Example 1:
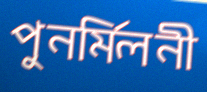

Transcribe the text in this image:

পুনর্মিলনী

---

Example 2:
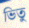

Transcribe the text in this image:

ভিতু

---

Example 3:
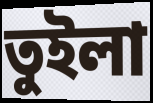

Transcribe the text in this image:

তুইলা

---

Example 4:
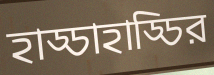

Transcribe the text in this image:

হাড্ডাহাড্ডির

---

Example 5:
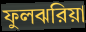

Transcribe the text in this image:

ফুলঝরিয়া